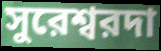
সুরেশ্বরদা